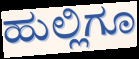
ಹುಲ್ಲಿಗೂ